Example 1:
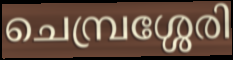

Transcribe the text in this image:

ചെമ്പ്രശ്ശേരി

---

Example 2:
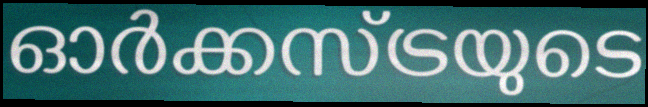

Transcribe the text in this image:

ഓർക്കസ്ട്രയുടെ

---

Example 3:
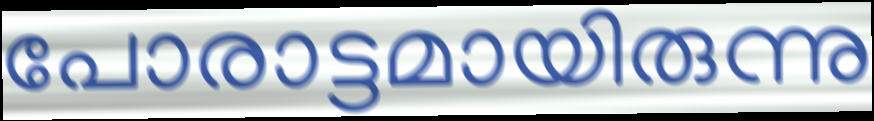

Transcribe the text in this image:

പോരാട്ടമായിരുന്നു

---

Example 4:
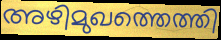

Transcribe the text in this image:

അഴിമുഖത്തെത്തി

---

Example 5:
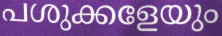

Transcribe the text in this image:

പശുക്കളേയും